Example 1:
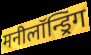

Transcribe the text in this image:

मनीलॉन्ड्रिंग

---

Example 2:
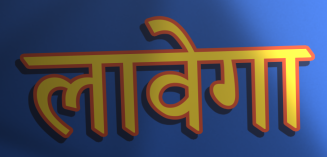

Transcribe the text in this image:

लावेगा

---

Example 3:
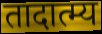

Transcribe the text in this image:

तादात्म्य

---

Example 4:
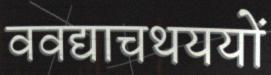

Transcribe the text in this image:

ववद्याचथययों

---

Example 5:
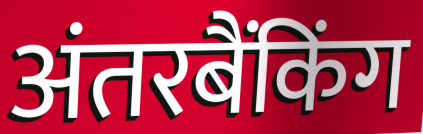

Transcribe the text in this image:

अंतरबैंकिंग